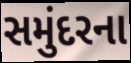
સમુંદરના